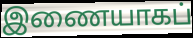
இணையாகப்